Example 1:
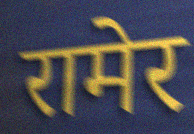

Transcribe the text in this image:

रामेर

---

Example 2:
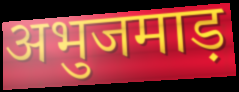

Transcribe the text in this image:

अभुजमाड़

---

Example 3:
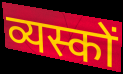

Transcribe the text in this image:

व्यस्कों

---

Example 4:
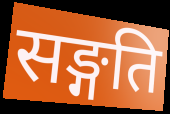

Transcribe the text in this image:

सङ्गति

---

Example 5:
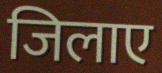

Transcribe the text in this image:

जिलाए